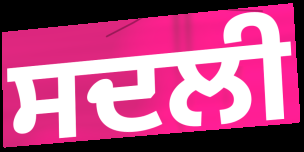
ਸਦਲੀ